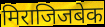
मिराजिजबेक